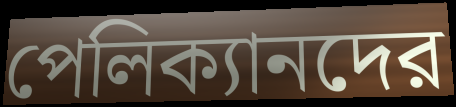
পেলিক্যানদের